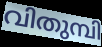
വിതുമ്പി